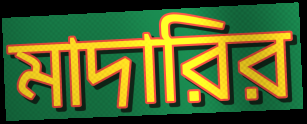
মাদারির